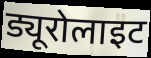
ड्यूरोलाइट